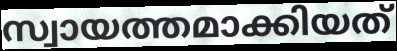
സ്വായത്തമാക്കിയത്